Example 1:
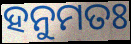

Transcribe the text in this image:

ହନୁମତଃ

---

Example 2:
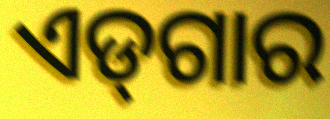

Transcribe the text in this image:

ଏଡ୍‌ଗାର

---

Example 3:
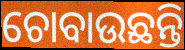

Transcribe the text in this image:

ଚୋବାଉଛନ୍ତି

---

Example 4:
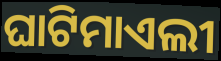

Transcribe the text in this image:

ଘାଟିମାଏଲୀ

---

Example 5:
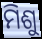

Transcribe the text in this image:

ମିଶୁ